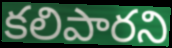
కలిపారని